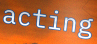
acting